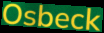
Osbeck